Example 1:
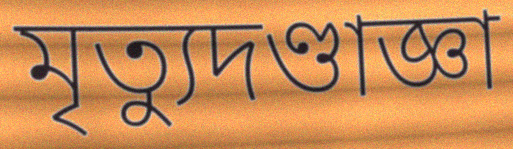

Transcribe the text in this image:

মৃত্যুদণ্ডাজ্ঞা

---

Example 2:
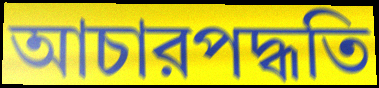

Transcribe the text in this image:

আচারপদ্ধতি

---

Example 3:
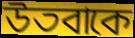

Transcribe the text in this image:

উতবাকে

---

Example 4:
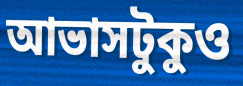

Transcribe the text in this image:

আভাসটুকুও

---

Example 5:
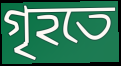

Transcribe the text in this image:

গৃহতে